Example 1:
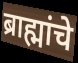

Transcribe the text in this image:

ब्राह्मांचे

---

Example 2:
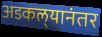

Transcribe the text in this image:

अडकल्यानंतर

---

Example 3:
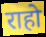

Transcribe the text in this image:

राहो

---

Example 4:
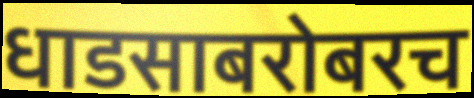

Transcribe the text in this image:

धाडसाबरोबरच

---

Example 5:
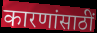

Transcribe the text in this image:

कारणांसाठीं